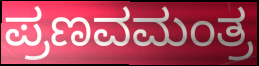
ಪ್ರಣವಮಂತ್ರ